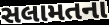
સલામતના